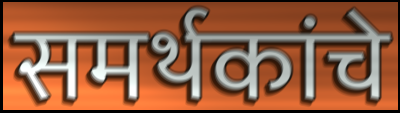
समर्थकांचे